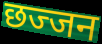
छज्जन